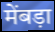
मेंबड़ा